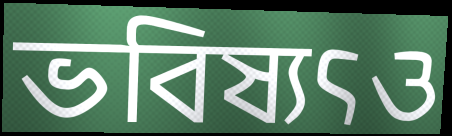
ভবিষ্যৎও